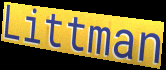
Littman